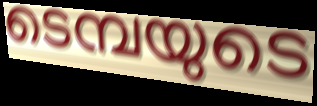
ടെമ്പയുടെ